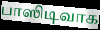
பாஸிடிவாக